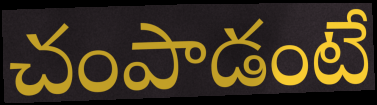
చంపాడంటే